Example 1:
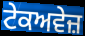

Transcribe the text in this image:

ਟੇਕਅਵੇਜ਼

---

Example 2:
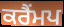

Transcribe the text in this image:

ਕਰੈਂਮਪ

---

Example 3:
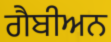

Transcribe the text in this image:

ਗੈਬੀਅਨ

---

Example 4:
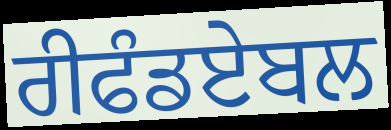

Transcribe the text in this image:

ਰੀਫੰਡਏਬਲ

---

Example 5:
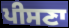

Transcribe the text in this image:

ਪੀਸਣਾ